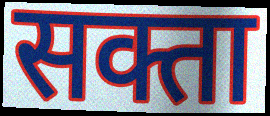
सक्ता